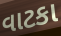
વાટકા